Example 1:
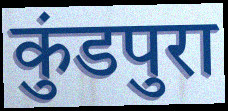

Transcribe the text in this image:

कुंडपुरा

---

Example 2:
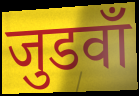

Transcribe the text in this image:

जुडवाँ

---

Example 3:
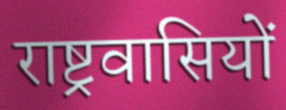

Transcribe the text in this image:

राष्ट्रवासियों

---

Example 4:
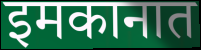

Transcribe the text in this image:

इमकानात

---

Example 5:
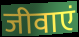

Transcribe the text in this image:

जीवाएं